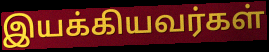
இயக்கியவர்கள்